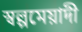
স্বল্পমেয়াদী